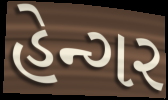
હેન્ગર